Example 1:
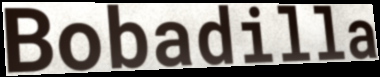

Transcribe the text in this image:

Bobadilla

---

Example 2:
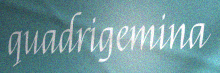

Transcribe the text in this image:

quadrigemina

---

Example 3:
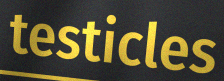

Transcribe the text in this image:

testicles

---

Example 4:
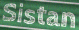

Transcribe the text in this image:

Sistan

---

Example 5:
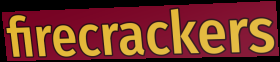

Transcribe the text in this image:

firecrackers